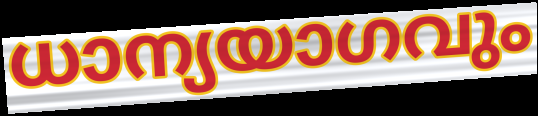
ധാന്യയാഗവും